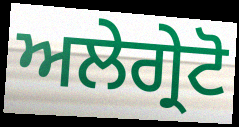
ਅਲੇਗ੍ਰੇਟੋ